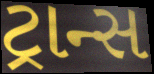
ટ્રાન્સ